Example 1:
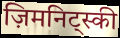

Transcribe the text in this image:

ज़िमनिट्स्की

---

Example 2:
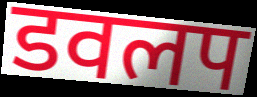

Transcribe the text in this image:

डवलप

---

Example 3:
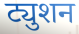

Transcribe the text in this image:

ट्युशन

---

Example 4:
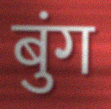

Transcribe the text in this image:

बुंग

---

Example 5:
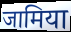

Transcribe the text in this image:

जामिया